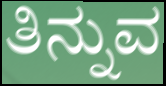
ತಿನ್ನುವ